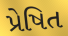
પ્રેષિત